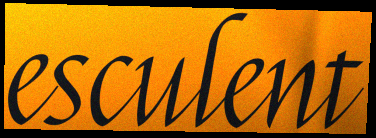
esculent